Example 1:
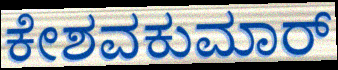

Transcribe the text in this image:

ಕೇಶವಕುಮಾರ್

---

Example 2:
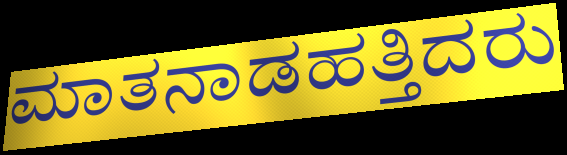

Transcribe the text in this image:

ಮಾತನಾಡಹತ್ತಿದರು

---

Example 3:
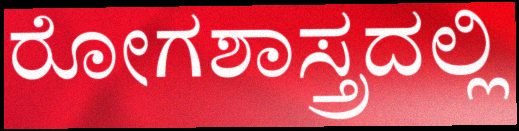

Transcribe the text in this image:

ರೋಗಶಾಸ್ತ್ರದಲ್ಲಿ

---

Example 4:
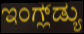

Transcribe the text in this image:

ಇಂಗ್ಲ್‌ಡ್ಯು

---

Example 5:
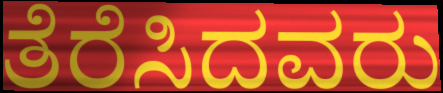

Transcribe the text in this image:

ತೆರೆಸಿದವರು